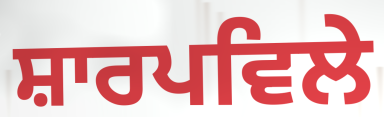
ਸ਼ਾਰਪਵਿਲੇ